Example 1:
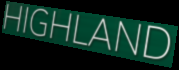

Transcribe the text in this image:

HIGHLAND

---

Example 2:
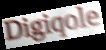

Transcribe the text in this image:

Digiqole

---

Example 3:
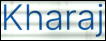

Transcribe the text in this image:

Kharaj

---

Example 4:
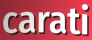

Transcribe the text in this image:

carati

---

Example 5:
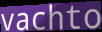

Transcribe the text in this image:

vachto